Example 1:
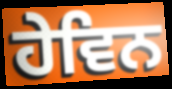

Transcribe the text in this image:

ਹੇਵਿਨ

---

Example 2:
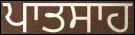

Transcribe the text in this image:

ਪਾਤਸਾਹ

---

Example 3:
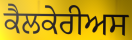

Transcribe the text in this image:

ਕੈਲਕੇਰੀਅਸ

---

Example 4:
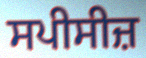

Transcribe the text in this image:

ਸਪੀਸੀਜ਼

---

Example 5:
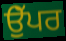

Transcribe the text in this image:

ਉੁੱਪਰ